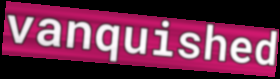
vanquished